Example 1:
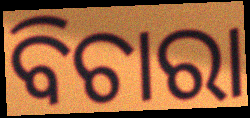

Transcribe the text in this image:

ବିଚାରା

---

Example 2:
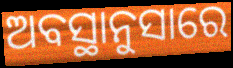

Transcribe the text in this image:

ଅବସ୍ଥାନୁସାରେ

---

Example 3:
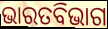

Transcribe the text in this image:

ଭାରତବିଭାଗ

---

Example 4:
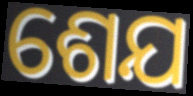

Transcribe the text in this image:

ଶେଯ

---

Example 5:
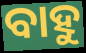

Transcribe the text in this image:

ବାହୁ